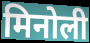
मिनोली